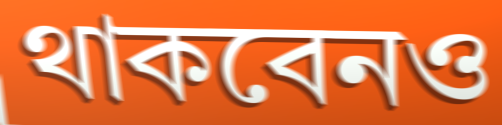
থাকবেনও